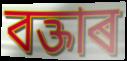
বক্তাৰ